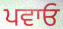
ਪਵਾਓ